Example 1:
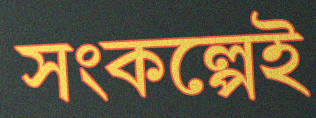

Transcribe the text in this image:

সংকল্পেই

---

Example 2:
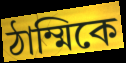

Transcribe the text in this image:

ঠাম্মিকে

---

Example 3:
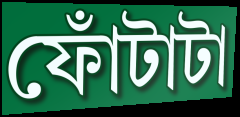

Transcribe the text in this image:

ফোঁটাটা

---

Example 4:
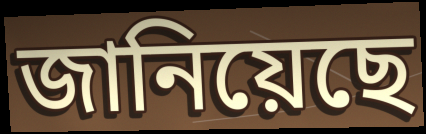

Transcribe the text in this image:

জানিয়েছে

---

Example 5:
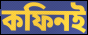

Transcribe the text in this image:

কফিনই